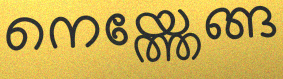
നെയ്ത്തേങ്ങ